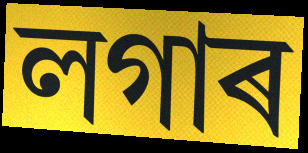
লগাৰ